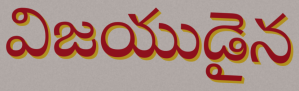
విజయుడైన